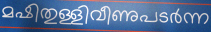
മഷിതുള്ളിവീണുപടർന്ന